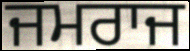
ਜਮਰਾਜ